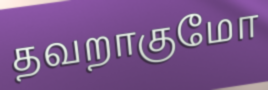
தவறாகுமோ